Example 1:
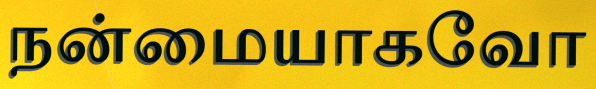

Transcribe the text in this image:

நன்மையாகவோ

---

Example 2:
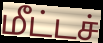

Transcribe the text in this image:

மீட்டச்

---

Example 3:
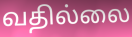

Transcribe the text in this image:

வதில்லை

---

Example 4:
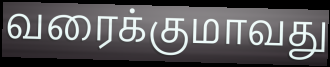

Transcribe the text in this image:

வரைக்குமாவது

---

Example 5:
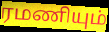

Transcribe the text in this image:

ரமணியும்